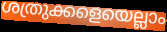
ശത്രുക്കളെയെല്ലാം